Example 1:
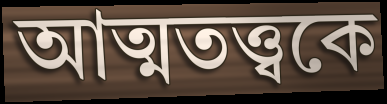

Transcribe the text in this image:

আত্মতত্ত্বকে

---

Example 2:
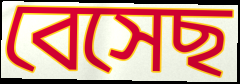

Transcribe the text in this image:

বেসেছ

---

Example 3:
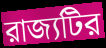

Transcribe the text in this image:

রাজ্যটির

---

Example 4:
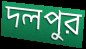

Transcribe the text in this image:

দলপুর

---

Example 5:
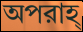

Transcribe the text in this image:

অপরাহ্